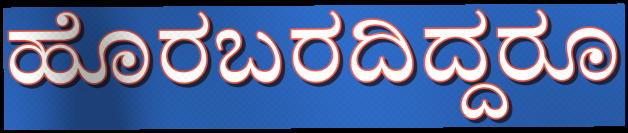
ಹೊರಬರದಿದ್ದರೂ